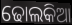
ଢୋଲକିଆ